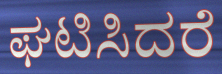
ಘಟಿಸಿದರೆ